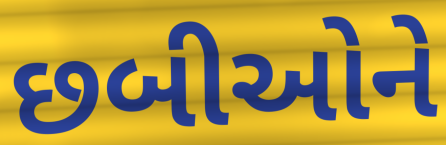
છબીઓને